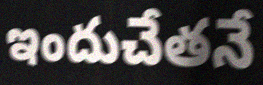
ఇందుచేతనే